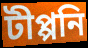
টীপ্পনি